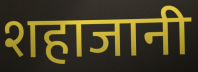
शहाजानी